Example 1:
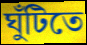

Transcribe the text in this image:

ঘুঁটিতে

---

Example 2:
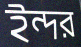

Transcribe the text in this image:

ইন্দর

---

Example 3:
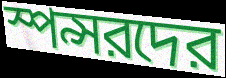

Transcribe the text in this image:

স্পন্সরদের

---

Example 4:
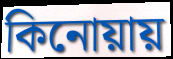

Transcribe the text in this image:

কিনোয়ায়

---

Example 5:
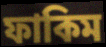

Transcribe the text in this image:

ফাকিম